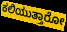
ಕಲಿಯುತ್ತಾರೋ